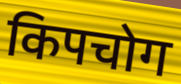
किपचोग